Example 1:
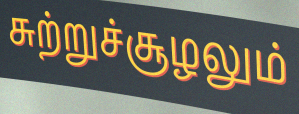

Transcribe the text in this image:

சுற்றுச்சூழலும்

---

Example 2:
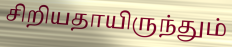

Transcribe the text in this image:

சிறியதாயிருந்தும்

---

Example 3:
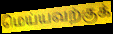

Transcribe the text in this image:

மெய்யவற்குக்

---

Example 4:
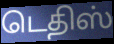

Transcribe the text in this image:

டெதிஸ்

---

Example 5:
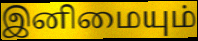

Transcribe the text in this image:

இனிமையும்